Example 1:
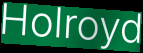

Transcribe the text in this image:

Holroyd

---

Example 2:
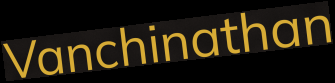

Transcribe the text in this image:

Vanchinathan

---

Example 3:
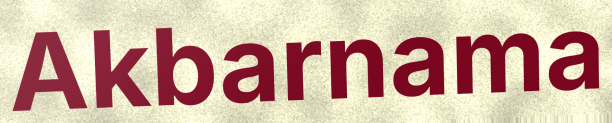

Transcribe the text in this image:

Akbarnama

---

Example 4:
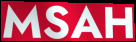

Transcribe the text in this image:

MSAH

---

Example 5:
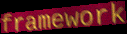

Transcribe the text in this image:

framework